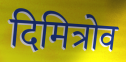
दिमित्रोव